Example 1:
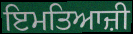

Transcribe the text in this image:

ਇਮਤਿਆਜ਼ੀ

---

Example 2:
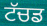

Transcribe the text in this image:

ਟੱਚਡ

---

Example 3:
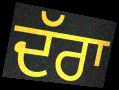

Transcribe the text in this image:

ਦੱਰਾ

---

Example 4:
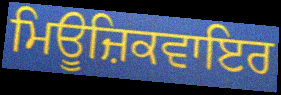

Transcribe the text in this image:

ਮਿਊਜ਼ਿਕਵਾਇਰ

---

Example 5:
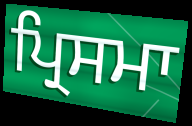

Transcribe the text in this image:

ਪ੍ਰਿਸਮਾ